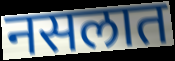
नसलात